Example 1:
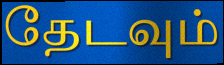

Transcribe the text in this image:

தேடவும்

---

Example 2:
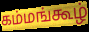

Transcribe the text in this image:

கம்மங்கூழ்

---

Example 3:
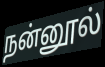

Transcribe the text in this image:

நன்னூல்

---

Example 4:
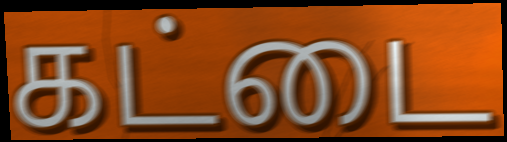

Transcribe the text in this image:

கட்டை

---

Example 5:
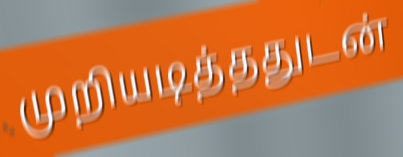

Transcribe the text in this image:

முறியடித்ததுடன்